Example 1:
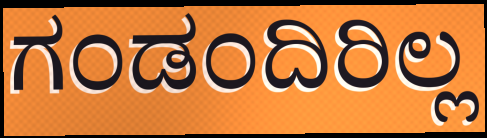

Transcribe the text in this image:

ಗಂಡಂದಿರಿಲ್ಲ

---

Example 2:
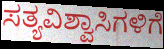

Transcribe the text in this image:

ಸತ್ಯವಿಶ್ವಾಸಿಗಳಿಗೆ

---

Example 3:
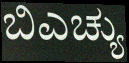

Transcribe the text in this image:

ಬಿಎಚ್ಯು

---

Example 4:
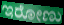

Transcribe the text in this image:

ಇರೋಣು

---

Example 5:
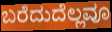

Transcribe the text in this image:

ಬರೆದುದೆಲ್ಲವೂ